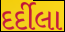
દર્દીલા